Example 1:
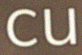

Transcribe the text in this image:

cu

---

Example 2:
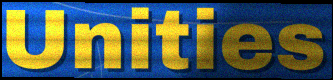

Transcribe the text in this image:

Unities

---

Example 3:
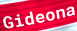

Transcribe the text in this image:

Gideona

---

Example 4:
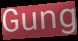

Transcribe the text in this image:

Gung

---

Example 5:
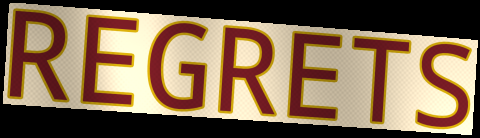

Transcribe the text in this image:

REGRETS